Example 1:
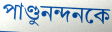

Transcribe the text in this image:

পাণ্ডুনন্দনকে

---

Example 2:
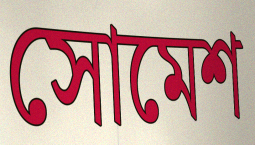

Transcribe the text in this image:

সোমেশ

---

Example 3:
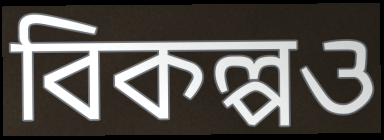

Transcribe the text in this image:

বিকল্পও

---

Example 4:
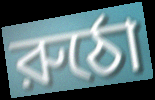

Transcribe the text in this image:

রুঠো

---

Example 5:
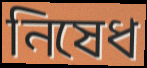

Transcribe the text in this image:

নিষেধ